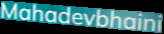
Mahadevbhaini